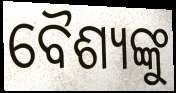
ବୈଶ୍ୟଙ୍କୁ